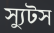
স্যুটস